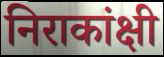
निराकांक्षी